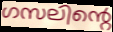
ഗസലിന്റെ